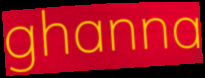
ghanna